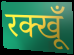
रक्खूँ